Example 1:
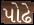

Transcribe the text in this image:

પોઢે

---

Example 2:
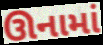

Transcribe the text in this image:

ઊનામાં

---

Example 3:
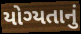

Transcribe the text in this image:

યોગ્યતાનું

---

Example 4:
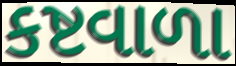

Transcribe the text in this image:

કષ્ટવાળા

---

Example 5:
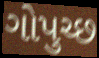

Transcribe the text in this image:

ગોપુચ્છ